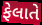
ફેલાતે